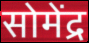
सोमेंद्र